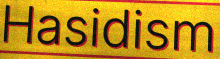
Hasidism